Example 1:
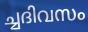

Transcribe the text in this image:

ച്ചദിവസം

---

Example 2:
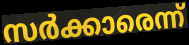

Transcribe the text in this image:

സർക്കാരെന്ന്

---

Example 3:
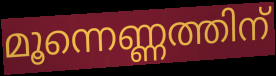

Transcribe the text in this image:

മൂന്നെണ്ണത്തിന്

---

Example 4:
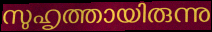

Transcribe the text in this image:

സുഹൃത്തായിരുന്നു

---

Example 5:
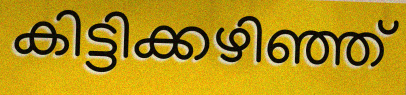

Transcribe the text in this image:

കിട്ടിക്കഴിഞ്ഞ്